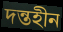
দন্তহীন